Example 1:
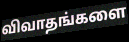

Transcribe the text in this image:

விவாதங்களை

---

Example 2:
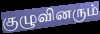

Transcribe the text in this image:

குழுவினரும்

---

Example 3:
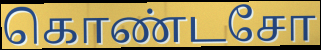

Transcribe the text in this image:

கொண்டசோ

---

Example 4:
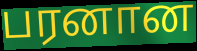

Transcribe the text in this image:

பரனான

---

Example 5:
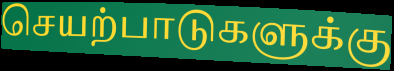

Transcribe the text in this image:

செயற்பாடுகளுக்கு